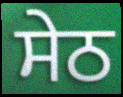
ਸੇਠ